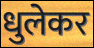
धुलेकर